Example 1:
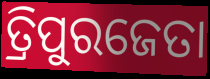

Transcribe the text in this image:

ତ୍ରିପୁରଜେତା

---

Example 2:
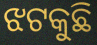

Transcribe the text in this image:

ଝଟକୁଛି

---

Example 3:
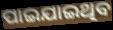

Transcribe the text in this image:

ପାଇଯାଇଥିବ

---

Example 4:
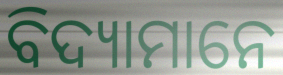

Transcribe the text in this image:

ବିଦ୍ୟାମାନେ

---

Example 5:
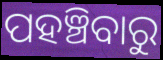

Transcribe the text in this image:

ପହଞ୍ଚିବାରୁ